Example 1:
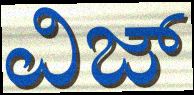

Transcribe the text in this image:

ವಿಜ್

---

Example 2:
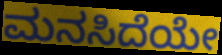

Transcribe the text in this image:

ಮನಸಿದೆಯೇ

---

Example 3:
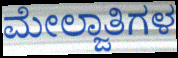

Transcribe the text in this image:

ಮೇಲ್ಜಾತಿಗಳ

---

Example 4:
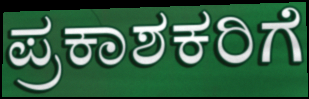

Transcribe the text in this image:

ಪ್ರಕಾಶಕರಿಗೆ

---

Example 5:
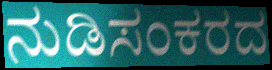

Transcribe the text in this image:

ನುಡಿಸಂಕರದ